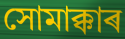
সোমাক্কাৰ